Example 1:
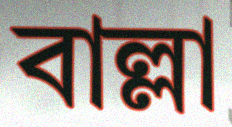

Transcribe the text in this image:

বাল্লা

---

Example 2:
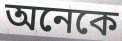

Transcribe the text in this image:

অনেকে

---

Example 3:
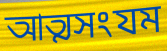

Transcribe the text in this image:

আত্মসংযম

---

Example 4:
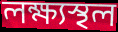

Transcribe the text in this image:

লক্ষ্যস্থল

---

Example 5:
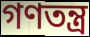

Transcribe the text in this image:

গণতন্ত্র